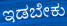
ಇಡಬೇಕು